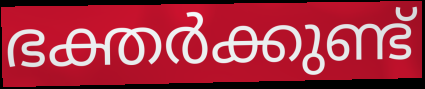
ഭക്തർക്കുണ്ട്